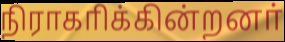
நிராகரிக்கின்றனர்